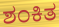
ಶಂಕಿತ